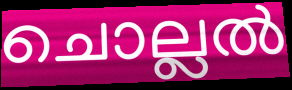
ചൊല്ലൽ